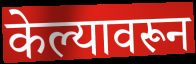
केल्यावरून